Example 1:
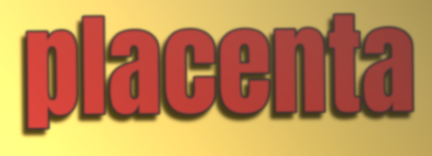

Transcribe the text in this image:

placenta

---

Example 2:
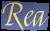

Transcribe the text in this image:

Rea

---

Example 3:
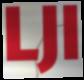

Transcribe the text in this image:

LJI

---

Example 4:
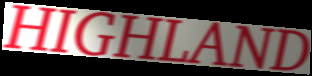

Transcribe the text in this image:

HIGHLAND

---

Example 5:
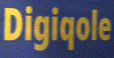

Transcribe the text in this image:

Digiqole